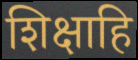
शिक्षाहि